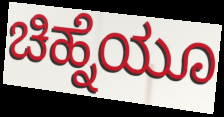
ಚಿಹ್ನೆಯೂ